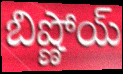
బిష్ణోయ్